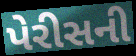
પેરીસની